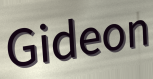
Gideon